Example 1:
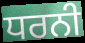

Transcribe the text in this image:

ਧਰਨੀ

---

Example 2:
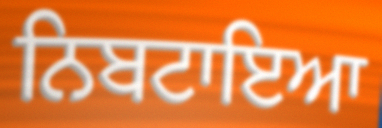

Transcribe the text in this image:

ਨਿਬਟਾਇਆ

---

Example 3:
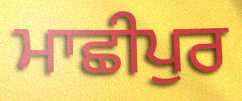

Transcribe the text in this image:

ਮਾਛੀਪੁਰ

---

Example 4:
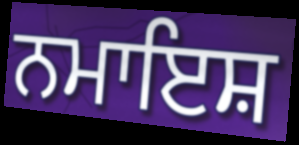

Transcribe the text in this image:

ਨਮਾਇਸ਼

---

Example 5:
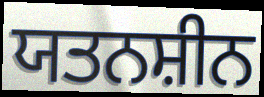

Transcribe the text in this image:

ਯਤਨਸ਼ੀਨ